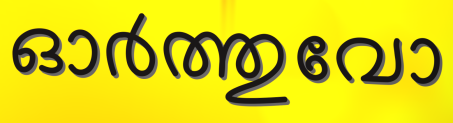
ഓർത്തുവോ